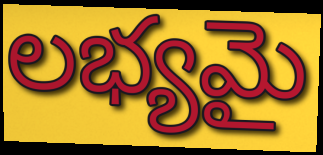
లభ్యమై